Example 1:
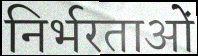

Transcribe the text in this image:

निर्भरताओं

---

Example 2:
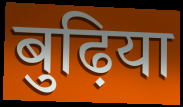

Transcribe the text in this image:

बुढ़िया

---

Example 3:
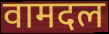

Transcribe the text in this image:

वामदल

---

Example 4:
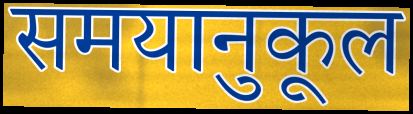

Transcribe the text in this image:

समयानुकूल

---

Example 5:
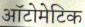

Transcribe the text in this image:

ऑटोमेटिक